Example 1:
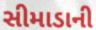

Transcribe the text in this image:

સીમાડાની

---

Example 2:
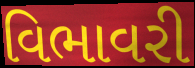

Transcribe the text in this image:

વિભાવરી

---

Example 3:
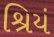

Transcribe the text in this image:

શ્રિયં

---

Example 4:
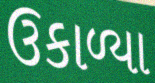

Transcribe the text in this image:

ઉકાળ્યા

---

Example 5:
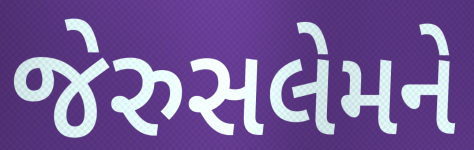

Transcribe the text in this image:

જેરુસલેમને